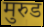
मुरुड